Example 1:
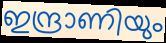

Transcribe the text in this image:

ഇന്ദ്രാണിയും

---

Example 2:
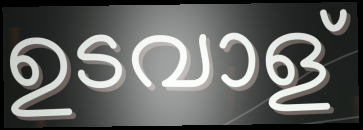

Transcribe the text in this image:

ഉടവാള്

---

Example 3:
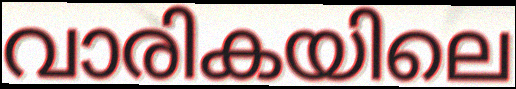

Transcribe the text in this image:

വാരികയിലെ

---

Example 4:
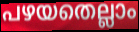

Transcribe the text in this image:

പഴയതെല്ലാം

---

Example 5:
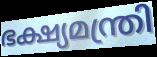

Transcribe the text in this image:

ഭക്ഷ്യമന്ത്രി